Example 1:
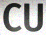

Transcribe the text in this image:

CU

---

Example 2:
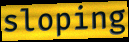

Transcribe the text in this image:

sloping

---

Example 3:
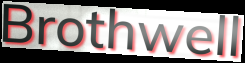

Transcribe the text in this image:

Brothwell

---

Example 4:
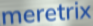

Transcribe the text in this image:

meretrix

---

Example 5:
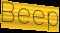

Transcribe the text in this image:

Beep